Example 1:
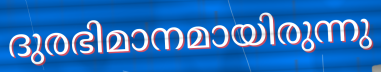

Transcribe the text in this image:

ദുരഭിമാനമായിരുന്നു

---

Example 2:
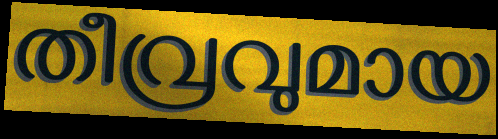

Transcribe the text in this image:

തീവ്രവുമായ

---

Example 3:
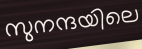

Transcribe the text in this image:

സുനന്ദയിലെ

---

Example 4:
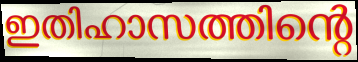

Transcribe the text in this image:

ഇതിഹാസത്തിന്റെ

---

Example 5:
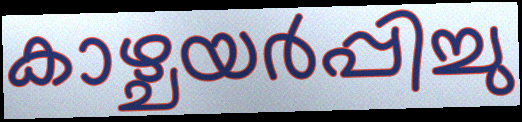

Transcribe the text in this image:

കാഴ്ചയർപ്പിച്ചു